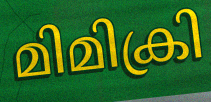
മിമിക്രി